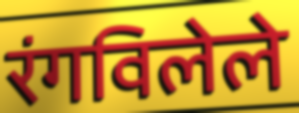
रंगविलेले